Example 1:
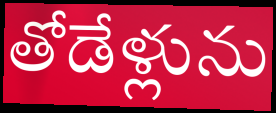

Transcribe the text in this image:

తోడేళ్లును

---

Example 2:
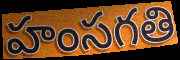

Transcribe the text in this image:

హంసగతి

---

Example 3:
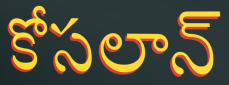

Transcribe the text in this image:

కోసలాన్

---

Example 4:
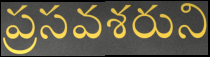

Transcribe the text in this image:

ప్రసవశరుని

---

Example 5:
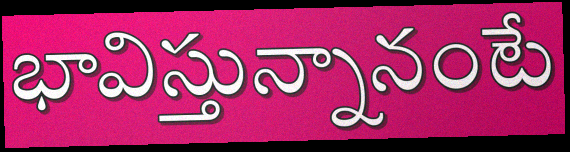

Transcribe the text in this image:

భావిస్తున్నానంటే